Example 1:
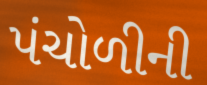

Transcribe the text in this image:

પંચોળીની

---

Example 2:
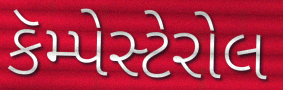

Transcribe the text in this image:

કૅમ્પેસ્ટેરોલ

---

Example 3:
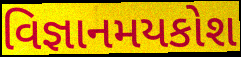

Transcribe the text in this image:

વિજ્ઞાનમયકોશ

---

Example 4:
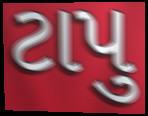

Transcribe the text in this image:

ટાપુ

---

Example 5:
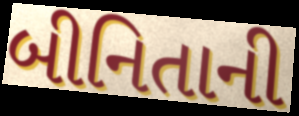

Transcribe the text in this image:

બીનિતાની